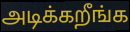
அடிக்கறீங்க